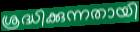
ശ്രദ്ധിക്കുന്നതായി